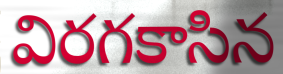
విరగకాసిన